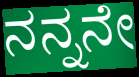
ನನ್ನನೇ